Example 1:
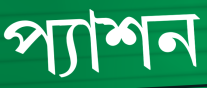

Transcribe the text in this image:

প্যাশন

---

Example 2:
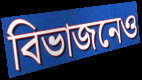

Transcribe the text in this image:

বিভাজনেও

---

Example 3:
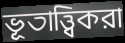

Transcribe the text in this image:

ভূতাত্ত্বিকরা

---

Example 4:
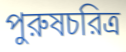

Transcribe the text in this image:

পুরুষচরিত্র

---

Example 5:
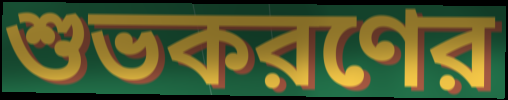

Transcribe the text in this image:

শুভকরণের